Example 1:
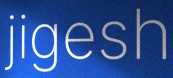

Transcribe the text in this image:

jigesh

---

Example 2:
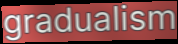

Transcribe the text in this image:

gradualism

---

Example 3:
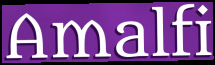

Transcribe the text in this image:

Amalfi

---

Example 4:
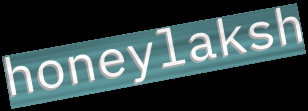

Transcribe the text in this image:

honeylaksh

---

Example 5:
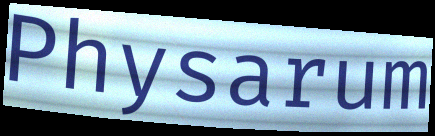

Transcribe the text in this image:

Physarum